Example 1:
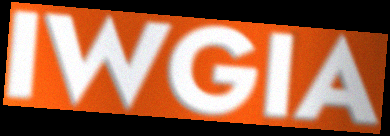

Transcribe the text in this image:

IWGIA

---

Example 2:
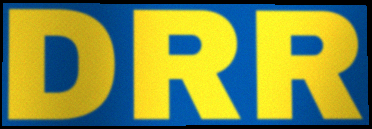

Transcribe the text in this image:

DRR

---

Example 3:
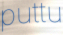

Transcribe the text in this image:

puttu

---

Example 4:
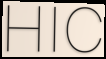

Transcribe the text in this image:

HIC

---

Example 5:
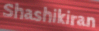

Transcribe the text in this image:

Shashikiran